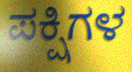
ಪಕ್ಷಿಗಳ